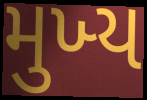
મુખ્‍ય